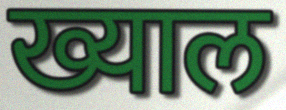
ख्याल